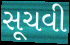
સૂચવી